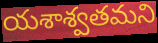
యశాశ్వతమని